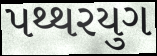
પથ્થરયુગ